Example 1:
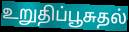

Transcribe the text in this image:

உறுதிப்பூசுதல்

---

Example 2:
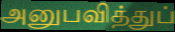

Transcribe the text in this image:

அனுபவித்துப்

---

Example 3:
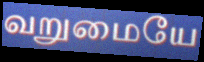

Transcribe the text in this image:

வறுமையே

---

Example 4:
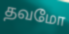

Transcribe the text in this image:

தவமோ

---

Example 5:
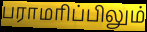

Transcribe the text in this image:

பராமரிப்பிலும்